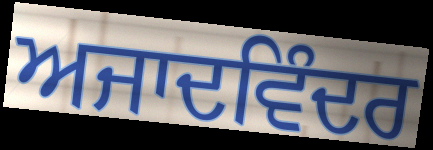
ਅਜਾਦਵਿੰਦਰ